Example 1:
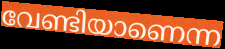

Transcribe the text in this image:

വേണ്ടിയാണെന്ന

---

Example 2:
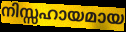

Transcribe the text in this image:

നിസ്സഹായമായ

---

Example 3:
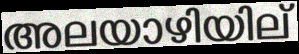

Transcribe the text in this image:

അലയാഴിയില്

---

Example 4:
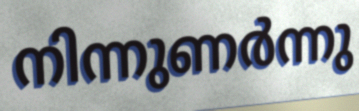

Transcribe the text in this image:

നിന്നുണർന്നു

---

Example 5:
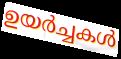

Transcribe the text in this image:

ഉയർച്ചകൾ